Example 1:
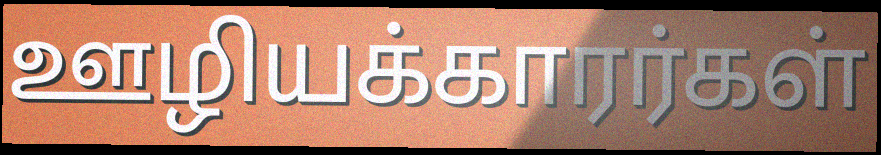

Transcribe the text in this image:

ஊழியக்காரர்கள்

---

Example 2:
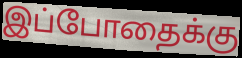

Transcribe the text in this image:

இப்போதைக்கு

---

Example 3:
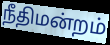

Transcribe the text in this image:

நீதிமன்றம்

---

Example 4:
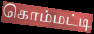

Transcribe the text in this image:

கொம்மட்டி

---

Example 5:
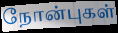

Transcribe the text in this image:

நோன்புகள்